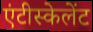
एंटीस्केलेंट